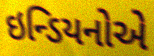
ઇન્ડિયનોએ